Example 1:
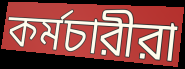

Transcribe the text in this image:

কর্মচারীরা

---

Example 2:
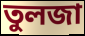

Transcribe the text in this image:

তুলজা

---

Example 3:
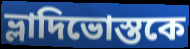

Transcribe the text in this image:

ভ্লাদিভোস্তকে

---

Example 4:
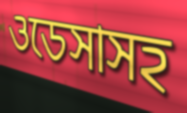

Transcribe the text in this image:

ওডেসাসহ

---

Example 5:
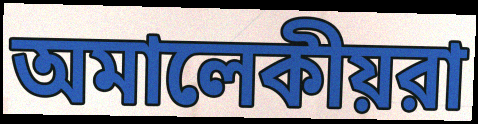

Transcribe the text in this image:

অমালেকীয়রা